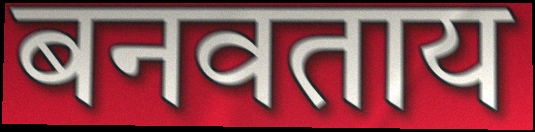
बनवताय